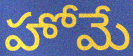
హోమే